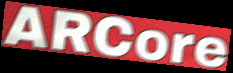
ARCore